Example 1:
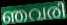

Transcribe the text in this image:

ഞവരി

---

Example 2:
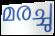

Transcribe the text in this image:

മരച്ചു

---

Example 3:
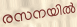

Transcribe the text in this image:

രസനയിൽ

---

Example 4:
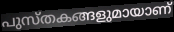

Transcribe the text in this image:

പുസ്തകങ്ങളുമായാണ്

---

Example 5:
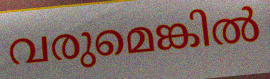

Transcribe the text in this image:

വരുമെങ്കിൽ